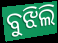
ବୁଝିଲି